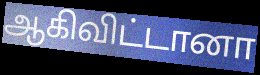
ஆகிவிட்டானா